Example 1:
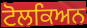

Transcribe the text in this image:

ਟੋਲਕਿਅਨ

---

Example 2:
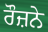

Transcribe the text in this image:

ਰੌਜ਼ਨੇ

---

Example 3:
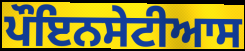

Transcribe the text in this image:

ਪੌਇਨਸੇਟੀਆਸ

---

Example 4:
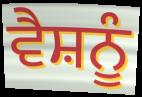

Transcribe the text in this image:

ਵੈਸ਼ਨੂੰ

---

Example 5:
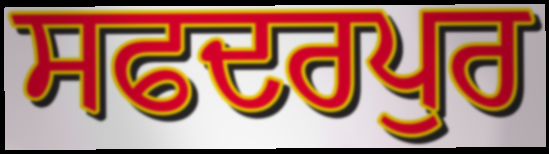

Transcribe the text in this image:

ਸਫਦਰਪੁਰ